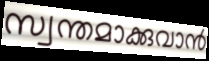
സ്വന്തമാക്കുവാൻ